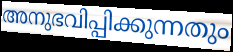
അനുഭവിപ്പിക്കുന്നതും